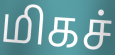
மிகச்